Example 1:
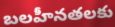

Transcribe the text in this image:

బలహీనతలకు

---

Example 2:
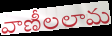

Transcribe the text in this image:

వాణీలలామ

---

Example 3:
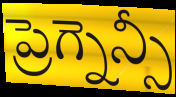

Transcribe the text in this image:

ప్రెగ్నెన్సీ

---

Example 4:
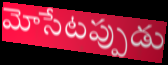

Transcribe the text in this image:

మోసేటప్పుడు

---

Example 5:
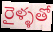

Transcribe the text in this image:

రైళ్ళతో